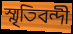
স্মৃতিবন্দী